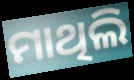
ମାଥିଲି